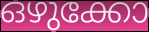
ഒഴുക്കോ